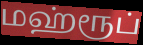
மஹ்ரூப்